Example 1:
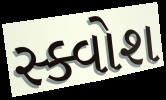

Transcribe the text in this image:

સ્ક્વોશ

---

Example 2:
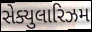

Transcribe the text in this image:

સેક્યુલારિઝમ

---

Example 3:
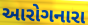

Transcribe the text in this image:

આરોગનારા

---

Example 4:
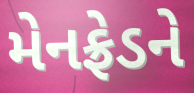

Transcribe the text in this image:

મેનફ્રેડને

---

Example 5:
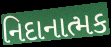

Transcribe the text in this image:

નિદાનાત્મક